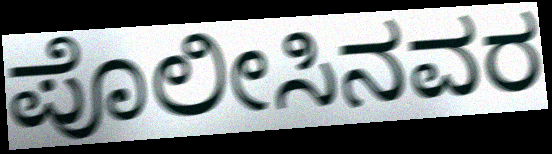
ಪೊಲೀಸಿನವರ